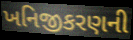
ખનિજીકરણની